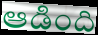
ఆడింది